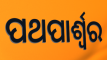
ପଥପାର୍ଶ୍ଵର